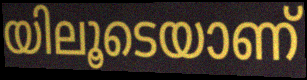
യിലൂടെയാണ്